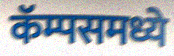
कॅम्पसमध्ये